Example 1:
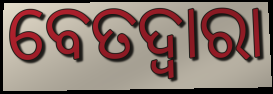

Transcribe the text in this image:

ବେତଦ୍ୱାରା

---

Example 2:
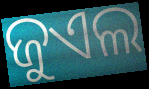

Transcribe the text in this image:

ଜୁଏଲ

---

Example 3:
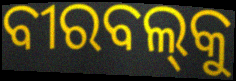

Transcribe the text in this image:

ବୀରବଲ୍‌କୁ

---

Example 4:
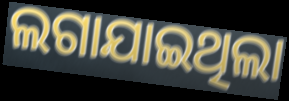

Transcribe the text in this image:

ଲଗାଯାଇଥିଲା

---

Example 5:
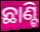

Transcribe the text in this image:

ଛାଣ୍ଟି